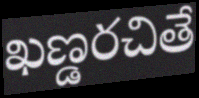
ఖణ్డరచితే